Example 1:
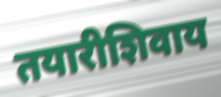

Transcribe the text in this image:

तयारीशिवाय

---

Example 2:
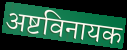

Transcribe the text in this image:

अष्टविनायक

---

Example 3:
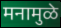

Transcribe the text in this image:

मनामुळे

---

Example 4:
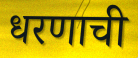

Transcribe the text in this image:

धरणाची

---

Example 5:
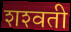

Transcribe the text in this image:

शश्वती